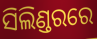
ସିଲିଣ୍ଡରରେ